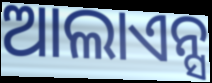
ଆଲାଏନ୍ସ